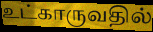
உட்காருவதில்